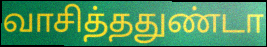
வாசித்ததுண்டா